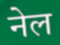
नेल